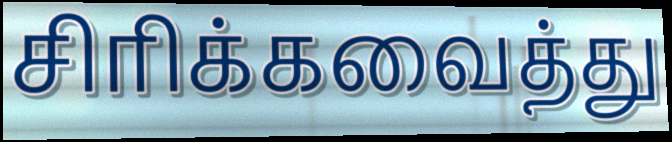
சிரிக்கவைத்து